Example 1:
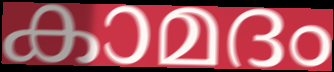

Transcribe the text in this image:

കാമദം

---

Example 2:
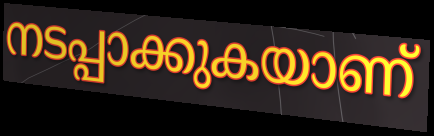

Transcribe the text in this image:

നടപ്പാക്കുകയാണ്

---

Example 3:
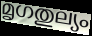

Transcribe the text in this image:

മൃഗതുല്യം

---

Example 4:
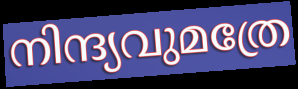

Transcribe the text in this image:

നിന്ദ്യവുമത്രേ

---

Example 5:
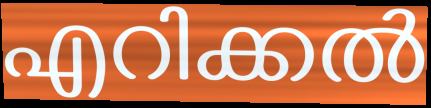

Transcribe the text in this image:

എറിക്കൽ